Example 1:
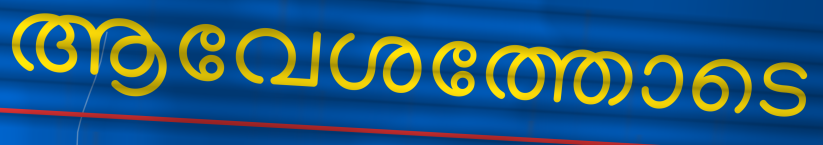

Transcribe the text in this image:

ആവേശത്തോടെ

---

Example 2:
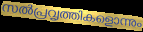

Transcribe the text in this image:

സൽപ്രവൃത്തികളൊന്നും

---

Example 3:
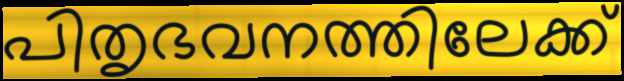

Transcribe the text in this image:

പിതൃഭവനത്തിലേക്ക്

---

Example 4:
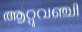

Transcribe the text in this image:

ആറ്റുവഞ്ചി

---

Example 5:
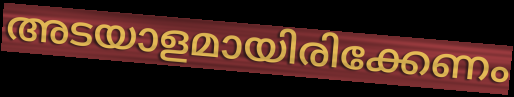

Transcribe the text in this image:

അടയാളമായിരിക്കേണം